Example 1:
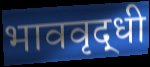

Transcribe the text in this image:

भाववृद्धी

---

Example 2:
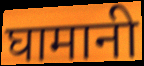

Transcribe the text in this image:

घामानी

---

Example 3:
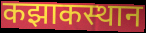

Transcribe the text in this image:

कझाकस्थान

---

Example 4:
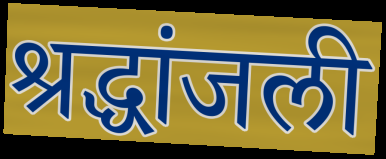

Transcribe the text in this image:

श्रद्धांजली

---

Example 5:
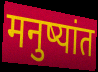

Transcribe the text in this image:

मनुष्यांत